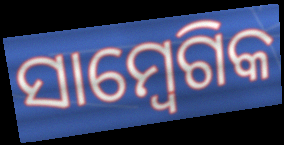
ସାମ୍ବେଗିକ